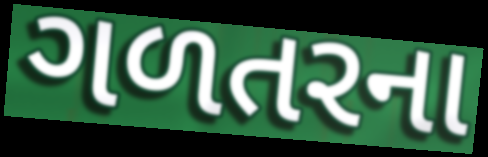
ગળતરના